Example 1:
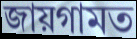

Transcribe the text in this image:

জায়গামত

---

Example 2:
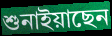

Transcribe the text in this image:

শুনাইয়াছেন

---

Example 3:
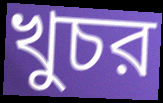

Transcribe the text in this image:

খুচর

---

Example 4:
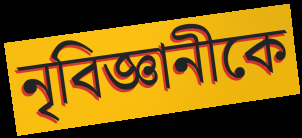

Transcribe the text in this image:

নৃবিজ্ঞানীকে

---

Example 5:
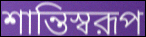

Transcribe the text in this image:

শান্তিস্বরূপ